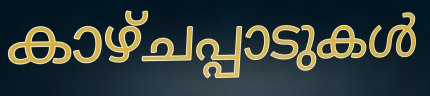
കാഴ്ചപ്പാടുകൾ